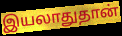
இயலாதுதான்